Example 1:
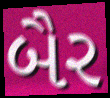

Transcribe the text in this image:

બૈર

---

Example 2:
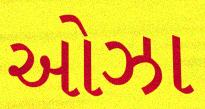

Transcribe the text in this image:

ઓઝા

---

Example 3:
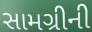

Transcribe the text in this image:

સામગ્રીની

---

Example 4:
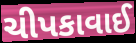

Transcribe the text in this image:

ચીપકાવાઈ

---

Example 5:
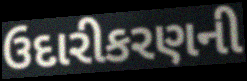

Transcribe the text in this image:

ઉદારીકરણની